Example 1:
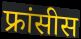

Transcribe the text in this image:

फ्रांसीस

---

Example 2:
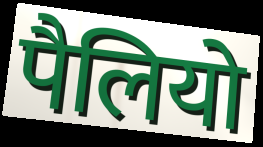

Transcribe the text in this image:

पैलियो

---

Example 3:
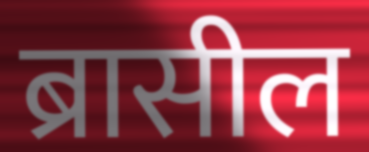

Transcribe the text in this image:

ब्रासील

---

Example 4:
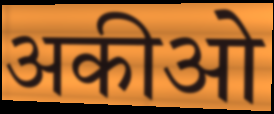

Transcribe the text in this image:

अकीओ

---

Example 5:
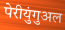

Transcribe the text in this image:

पेरीयुंगुअल